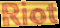
Riot